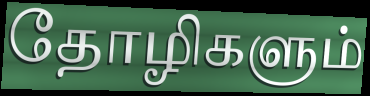
தோழிகளும்